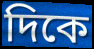
দিকে